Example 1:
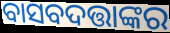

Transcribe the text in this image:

ବାସବଦତ୍ତାଙ୍କର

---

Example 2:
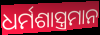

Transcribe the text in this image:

ଧର୍ମଶାସ୍ତ୍ରମାନ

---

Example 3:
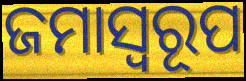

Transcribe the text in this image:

ଜମାସ୍ବରୂପ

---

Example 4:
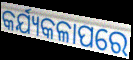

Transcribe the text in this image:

କର୍ଯ୍ୟକଳାପରେ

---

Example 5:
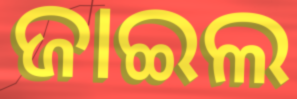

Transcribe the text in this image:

ଜାଇଲ